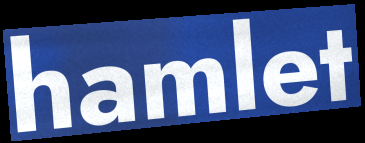
hamlet